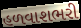
હળવાશભરી